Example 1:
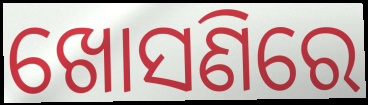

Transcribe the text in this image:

ଖୋସଣିରେ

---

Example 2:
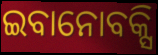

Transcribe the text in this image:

ଇବାନୋବକ୍ସି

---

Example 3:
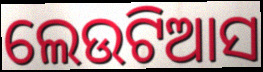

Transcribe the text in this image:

ଲେଉଟିଆସ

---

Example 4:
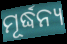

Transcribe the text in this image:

ମୂର୍ଦ୍ଧନ୍ୟ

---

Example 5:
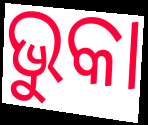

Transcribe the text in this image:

ଭୁକା